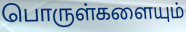
பொருள்களையும்